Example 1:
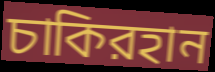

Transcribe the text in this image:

চাকিরহান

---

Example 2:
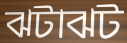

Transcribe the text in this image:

ঝটাঝট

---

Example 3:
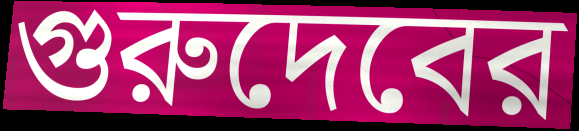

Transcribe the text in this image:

গুরুদেবের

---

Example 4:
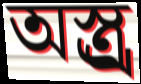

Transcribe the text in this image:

অস্ত্র্র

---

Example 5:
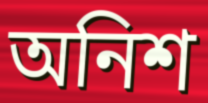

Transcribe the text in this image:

অনিশ